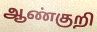
ஆண்குறி